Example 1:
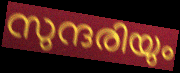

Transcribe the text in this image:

സുന്ദരിയും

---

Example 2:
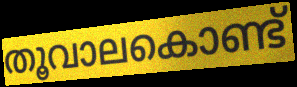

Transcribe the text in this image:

തൂവാലകൊണ്ട്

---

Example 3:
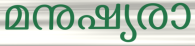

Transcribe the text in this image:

മനുഷ്യരാ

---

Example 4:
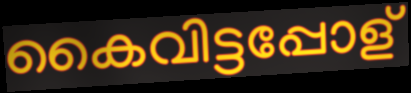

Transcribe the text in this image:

കൈവിട്ടപ്പോള്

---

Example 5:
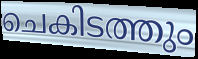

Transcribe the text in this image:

ചെകിടത്തും